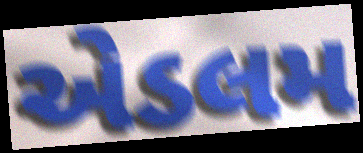
એડલમ